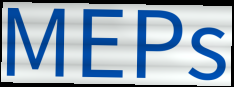
MEPs